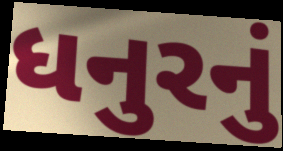
ધનુરનું